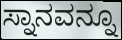
ಸ್ನಾನವನ್ನೂ